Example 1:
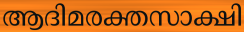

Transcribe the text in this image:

ആദിമരക്തസാക്ഷി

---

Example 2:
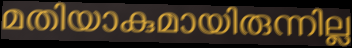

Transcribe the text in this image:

മതിയാകുമായിരുന്നില്ല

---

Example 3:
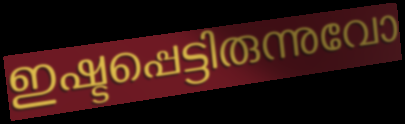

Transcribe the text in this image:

ഇഷ്ടപ്പെട്ടിരുന്നുവോ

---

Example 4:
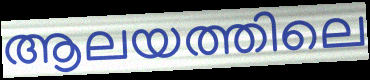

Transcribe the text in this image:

ആലയത്തിലെ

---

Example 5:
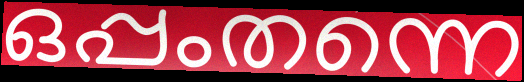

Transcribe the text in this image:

ഒപ്പംതന്നെ